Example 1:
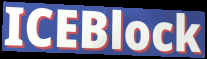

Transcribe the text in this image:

ICEBlock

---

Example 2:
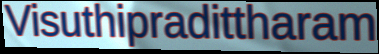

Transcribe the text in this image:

Visuthipradittharam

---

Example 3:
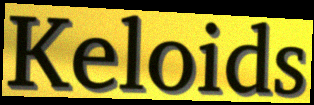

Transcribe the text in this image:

Keloids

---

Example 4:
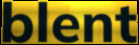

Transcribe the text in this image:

blent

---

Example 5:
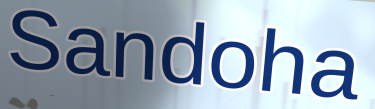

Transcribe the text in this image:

Sandoha